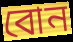
বোন